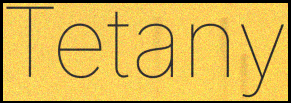
Tetany